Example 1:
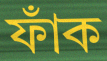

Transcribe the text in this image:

ফাঁক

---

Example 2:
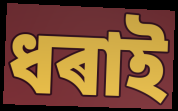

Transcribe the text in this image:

ধৰাই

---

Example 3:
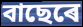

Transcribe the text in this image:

বাছেৰে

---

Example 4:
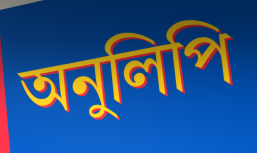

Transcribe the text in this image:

অনুলিপি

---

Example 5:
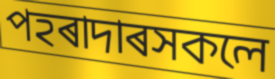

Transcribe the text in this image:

পহৰাদাৰসকলে